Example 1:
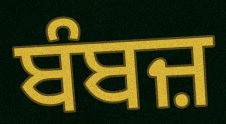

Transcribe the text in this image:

ਬੰਬਜ਼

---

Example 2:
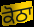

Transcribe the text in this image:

ਕੋਠਾ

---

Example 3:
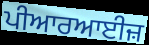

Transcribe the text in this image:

ਪੀਆਰਆਈਜ਼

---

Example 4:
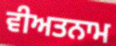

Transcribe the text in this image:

ਵੀਅਤਨਾਮ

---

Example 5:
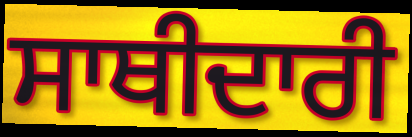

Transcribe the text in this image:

ਸਾਥੀਦਾਰੀ